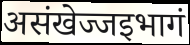
असंखेज्जइभागं